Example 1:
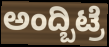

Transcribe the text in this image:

ಅಂದ್ಬಿಟ್ರೆ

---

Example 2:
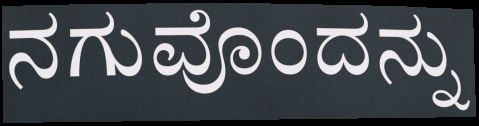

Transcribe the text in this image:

ನಗುವೊಂದನ್ನು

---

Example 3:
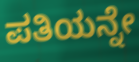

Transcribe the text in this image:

ಪತಿಯನ್ನೇ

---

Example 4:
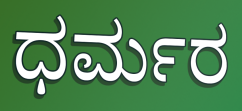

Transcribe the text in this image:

ಧರ್ಮರ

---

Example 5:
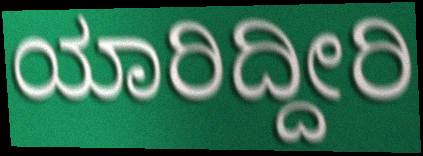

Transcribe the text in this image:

ಯಾರಿದ್ದೀರಿ